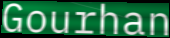
Gourhan